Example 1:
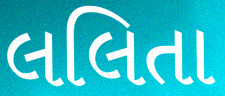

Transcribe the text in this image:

લલિતા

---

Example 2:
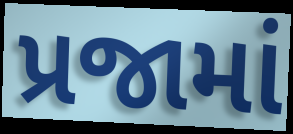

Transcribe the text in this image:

પ્રજામાં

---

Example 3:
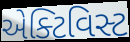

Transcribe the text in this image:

એક્ટિવિસ્ટ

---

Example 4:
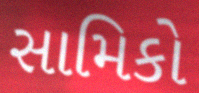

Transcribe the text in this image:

સામિકો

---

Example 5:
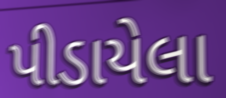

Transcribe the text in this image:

પીડાયેલા